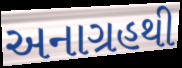
અનાગ્રહથી